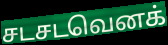
சடசடவெனக்